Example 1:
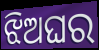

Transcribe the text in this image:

ଝିଅଘର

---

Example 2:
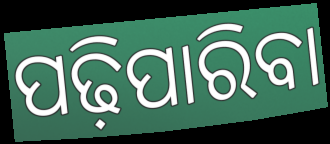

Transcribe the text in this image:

ପଢ଼ିପାରିବା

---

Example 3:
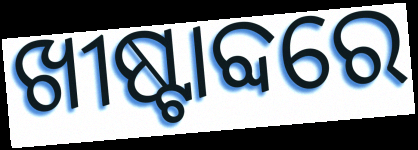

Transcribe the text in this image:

ଖୀଷ୍ଟାବ୍ଦରେ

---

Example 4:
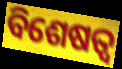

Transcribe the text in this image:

ବିଶେଷତ୍ଵ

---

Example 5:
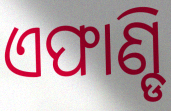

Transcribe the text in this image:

ଏଫାଣ୍ଡି